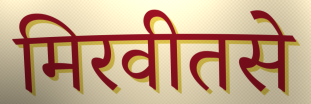
मिरवीतसे